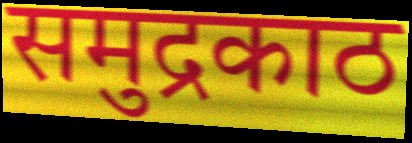
समुद्रकाठ